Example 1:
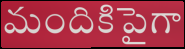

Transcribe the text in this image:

మందికిపైగా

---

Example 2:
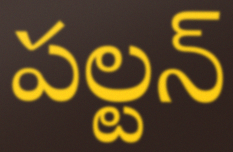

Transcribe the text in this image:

పల్టన్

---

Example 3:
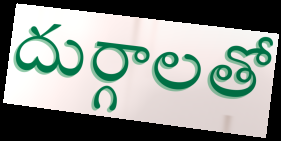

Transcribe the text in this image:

దుర్గాలతో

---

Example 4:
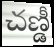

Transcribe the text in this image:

చణ్డీ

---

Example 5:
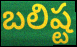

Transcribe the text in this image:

బలిష్ట